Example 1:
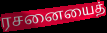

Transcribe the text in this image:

ரசனையைத்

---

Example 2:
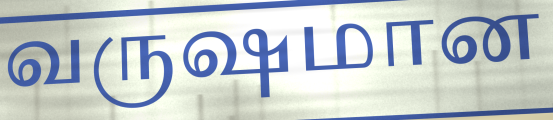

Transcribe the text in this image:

வருஷமான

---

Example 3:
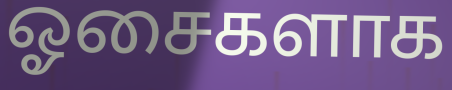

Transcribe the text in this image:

ஓசைகளாக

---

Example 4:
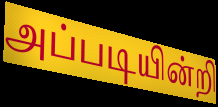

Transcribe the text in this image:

அப்படியின்றி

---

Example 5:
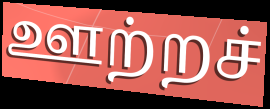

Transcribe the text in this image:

ஊற்றச்